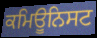
ਕਮਿਊਨਿਸਟ